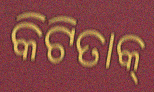
କିଟିତାକ୍